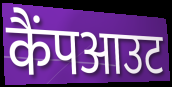
कैंपआउट